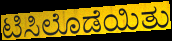
ಟಿಸಿಲೊಡೆಯಿತು